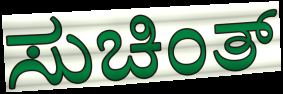
ಸುಚಿಂತ್